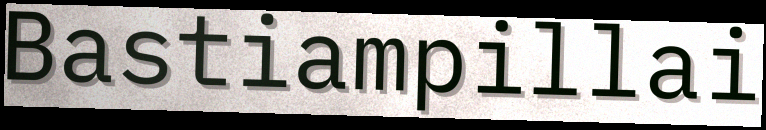
Bastiampillai